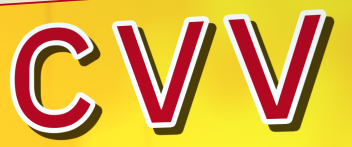
cvv